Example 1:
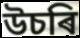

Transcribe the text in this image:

উচৰি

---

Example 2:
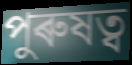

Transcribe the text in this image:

পুৰুষত্ব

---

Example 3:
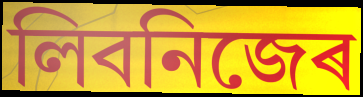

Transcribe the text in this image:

লিবনিজেৰ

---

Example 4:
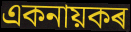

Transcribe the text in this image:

একনায়কৰ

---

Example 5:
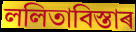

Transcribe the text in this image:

ললিতাবিস্তাৰ